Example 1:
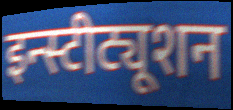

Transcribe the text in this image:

इन्स्टीट्यूशन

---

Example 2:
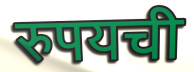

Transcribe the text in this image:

रुपयची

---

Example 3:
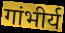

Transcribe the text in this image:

गांभीर्य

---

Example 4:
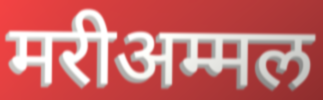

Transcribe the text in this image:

मरीअम्मल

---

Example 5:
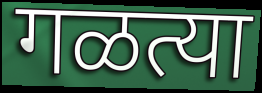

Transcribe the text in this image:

गळत्या